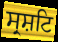
ਸ੍ਰਸ਼ਟਿ